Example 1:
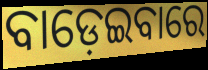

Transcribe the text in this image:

ବାଡ଼େଇବାରେ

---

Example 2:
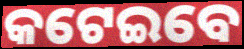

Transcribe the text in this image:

କଟେଇବେ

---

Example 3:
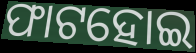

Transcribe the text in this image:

ଫାଟହୋଇ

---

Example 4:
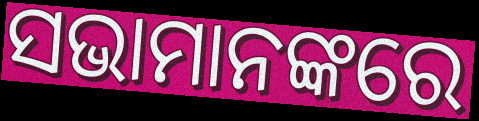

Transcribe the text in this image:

ସଭାମାନଙ୍କରେ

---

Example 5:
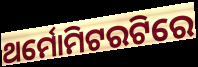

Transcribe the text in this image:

ଥର୍ମୋମିଟରଟିରେ